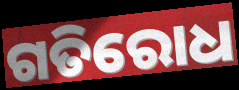
ଗତିରୋଧ